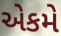
એકમે